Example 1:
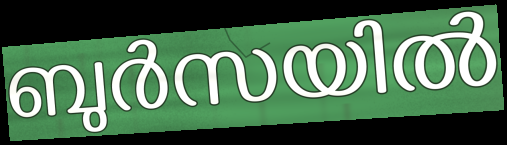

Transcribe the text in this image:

ബുർസയിൽ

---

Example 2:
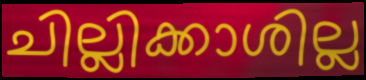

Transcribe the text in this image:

ചില്ലിക്കാശില്ല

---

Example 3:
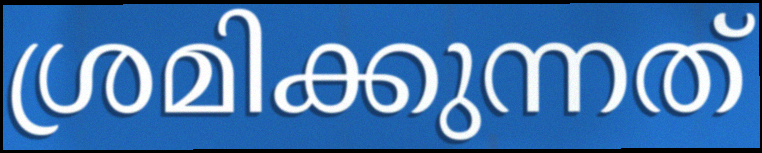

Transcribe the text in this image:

ശ്രമിക്കുന്നത്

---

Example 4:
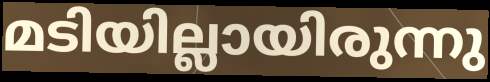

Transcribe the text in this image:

മടിയില്ലായിരുന്നു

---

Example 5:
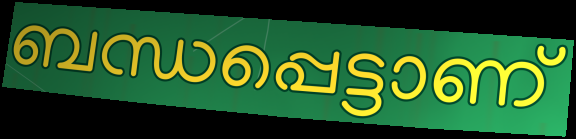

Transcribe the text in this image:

ബന്ധപ്പെട്ടാണ്